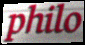
philo